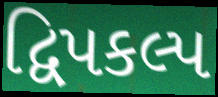
દ્વિપકલ્પ